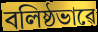
বলিষ্ঠভাৱে